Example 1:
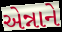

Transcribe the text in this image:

એન્નાને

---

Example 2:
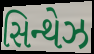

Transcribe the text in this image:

સિન્થેઝ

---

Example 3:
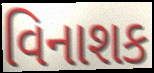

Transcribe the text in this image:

વિનાશક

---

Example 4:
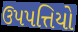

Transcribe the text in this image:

ઉપપત્તિયો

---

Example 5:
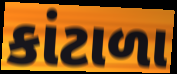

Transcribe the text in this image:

કાંટાળા